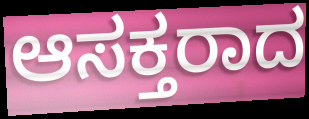
ಆಸಕ್ತರಾದ